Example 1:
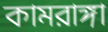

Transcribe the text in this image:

কামরাঙ্গা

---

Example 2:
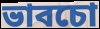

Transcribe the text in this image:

ভাবচো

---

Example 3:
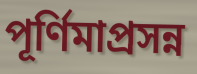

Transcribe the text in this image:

পূর্ণিমাপ্রসন্ন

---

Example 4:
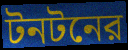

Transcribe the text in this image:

টনটনের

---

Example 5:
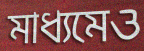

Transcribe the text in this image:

মাধ্যমেও